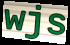
wjs